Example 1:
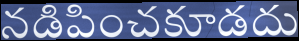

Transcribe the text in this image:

నడిపించకూడదు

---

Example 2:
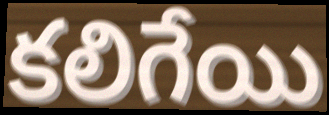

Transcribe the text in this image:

కలిగేయి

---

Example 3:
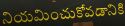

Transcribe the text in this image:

నియమించుకోవడానికి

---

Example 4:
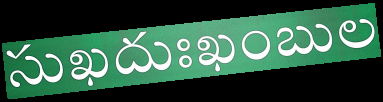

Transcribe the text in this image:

సుఖదుఃఖంబుల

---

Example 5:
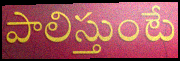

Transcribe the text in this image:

పాలిస్తుంటే